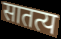
सातत्य